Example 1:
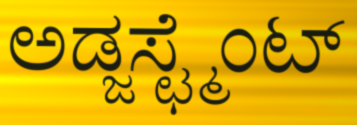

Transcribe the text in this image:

ಅಡ್ಜಸ್ಟ್ಮೆಂಟ್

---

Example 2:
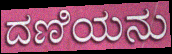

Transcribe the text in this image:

ದಣಿಯನು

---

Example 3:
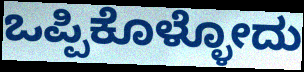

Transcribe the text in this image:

ಒಪ್ಪಿಕೊಳ್ಳೋದು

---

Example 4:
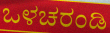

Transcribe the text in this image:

ಒಳಚರಂಡಿ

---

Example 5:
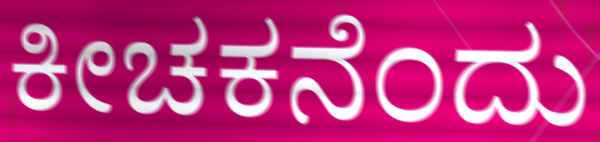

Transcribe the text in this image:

ಕೀಚಕನೆಂದು